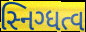
સ્નિગ્ધત્વ